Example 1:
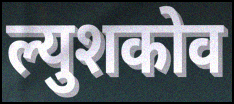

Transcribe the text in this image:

ल्युशकोव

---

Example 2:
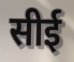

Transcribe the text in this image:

सीई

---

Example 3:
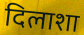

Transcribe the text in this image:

दिलाशा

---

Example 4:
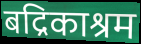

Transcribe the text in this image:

बद्रिकाश्रम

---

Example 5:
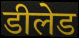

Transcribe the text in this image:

डीलेड